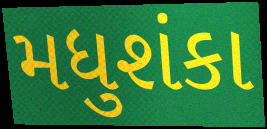
મધુશંકા